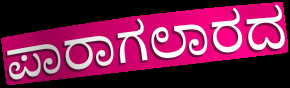
ಪಾರಾಗಲಾರದ